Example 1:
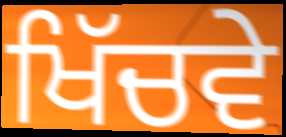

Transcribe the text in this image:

ਖਿੱਚਵੇ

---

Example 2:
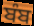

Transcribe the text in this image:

ਬੰਬ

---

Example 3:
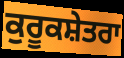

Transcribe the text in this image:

ਕੁਰੂਕਸ਼ੇਤਰਾ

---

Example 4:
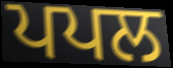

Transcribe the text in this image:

ਪਪਲ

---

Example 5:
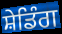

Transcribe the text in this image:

ਸ਼ੇਡਿੰਗ